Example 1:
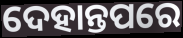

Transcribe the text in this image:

ଦେହାନ୍ତପରେ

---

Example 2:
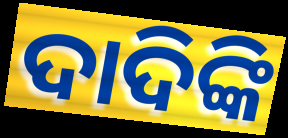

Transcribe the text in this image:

ଦାଦିଙ୍କି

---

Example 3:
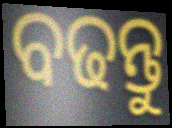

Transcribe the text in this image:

ବଢନ୍ତୁ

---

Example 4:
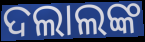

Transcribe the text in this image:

ଦଲାଲଙ୍କ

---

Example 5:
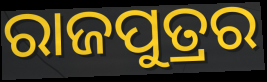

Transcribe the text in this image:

ରାଜପୁତ୍ରର